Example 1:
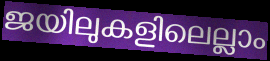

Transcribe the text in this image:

ജയിലുകളിലെല്ലാം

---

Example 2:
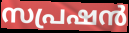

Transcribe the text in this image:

സപ്രഷൻ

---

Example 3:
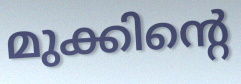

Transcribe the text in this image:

മുക്കിന്റെ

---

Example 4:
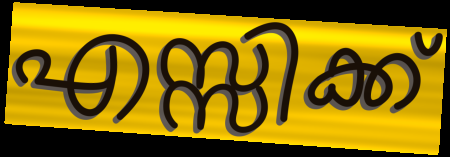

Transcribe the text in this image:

എസ്സിക്ക്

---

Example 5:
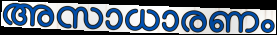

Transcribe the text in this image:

അസാധാരണം